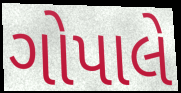
ગોપાલે